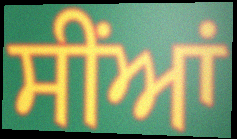
ਸੀਂਆਂ